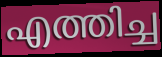
എത്തിച്ച